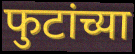
फुटांच्या